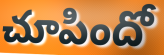
చూపిందో